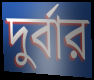
দুর্বার